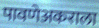
पावणेअकराला